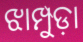
ଝାମ୍ପୁଡ଼ା